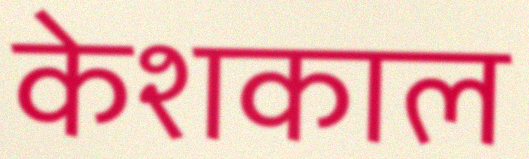
केशकाल